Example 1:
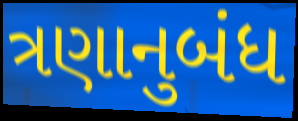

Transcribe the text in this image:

ત્રણાનુબંધ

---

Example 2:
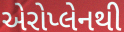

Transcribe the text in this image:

એરોપ્લેનથી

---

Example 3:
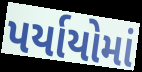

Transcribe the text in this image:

પર્યાયોમાં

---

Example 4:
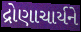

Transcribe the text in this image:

દ્રોણાચાર્યને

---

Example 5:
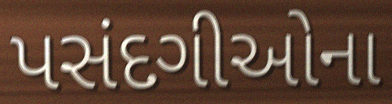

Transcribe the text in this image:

પસંદગીઓના